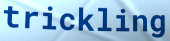
trickling